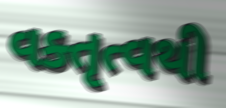
વક્તૃત્વથી